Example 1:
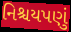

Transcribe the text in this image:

નિશ્ચયપણું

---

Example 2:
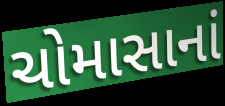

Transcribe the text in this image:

ચોમાસાનાં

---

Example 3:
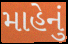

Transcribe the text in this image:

માહેનું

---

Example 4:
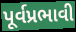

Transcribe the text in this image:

પૂર્વપ્રભાવી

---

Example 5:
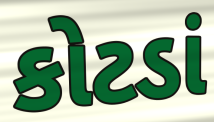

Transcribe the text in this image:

કોટડાં